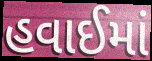
હવાઈમાં